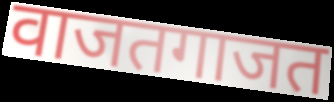
वाजतगाजत